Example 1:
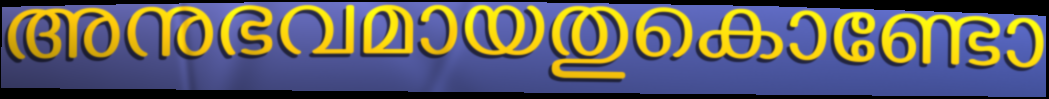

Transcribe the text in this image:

അനുഭവമായതുകൊണ്ടോ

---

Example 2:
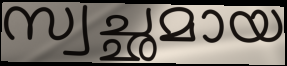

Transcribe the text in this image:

സ്വച്ഛമായ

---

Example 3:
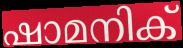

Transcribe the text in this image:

ഷാമനിക്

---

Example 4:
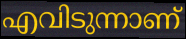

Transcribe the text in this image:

എവിടുന്നാണ്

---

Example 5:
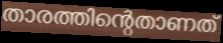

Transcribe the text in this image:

താരത്തിന്റെതാണത്